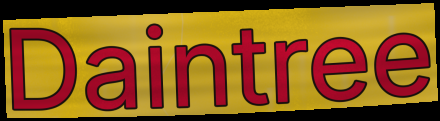
Daintree